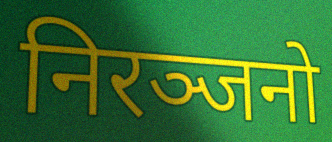
निरञ्जनो